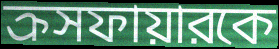
ক্রসফায়ারকে